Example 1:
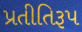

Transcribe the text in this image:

પ્રતીતિરૂપ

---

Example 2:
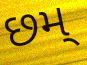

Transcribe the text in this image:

છમ્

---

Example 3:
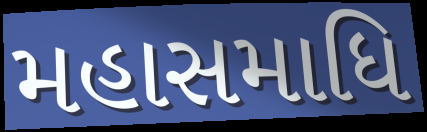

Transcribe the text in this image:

મહાસમાધિ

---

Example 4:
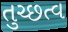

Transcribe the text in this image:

તુચ્છત્વ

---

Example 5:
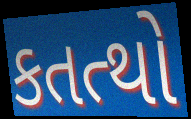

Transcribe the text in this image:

કતત્થો